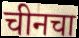
चीनचा